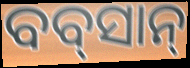
ବବ୍‌ସାନ୍